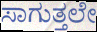
ಸಾಗುತ್ತಲೇ